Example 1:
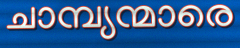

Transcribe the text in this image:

ചാമ്പ്യന്മാരെ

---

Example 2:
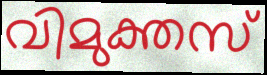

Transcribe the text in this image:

വിമുക്തസ്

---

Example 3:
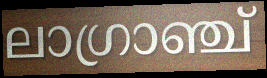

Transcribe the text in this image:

ലാഗ്രാഞ്ച്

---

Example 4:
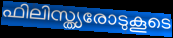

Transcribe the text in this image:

ഫിലിസ്ത്യരോടുകൂടെ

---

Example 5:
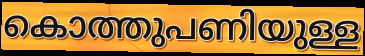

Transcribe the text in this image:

കൊത്തുപണിയുള്ള